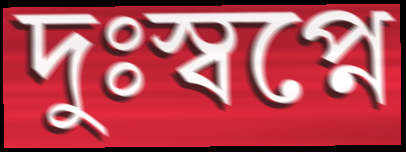
দুঃস্বপ্নে